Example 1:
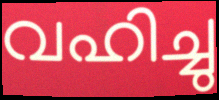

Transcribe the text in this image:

വഹിച്ചു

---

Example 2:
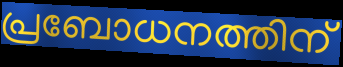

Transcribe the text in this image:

പ്രബോധനത്തിന്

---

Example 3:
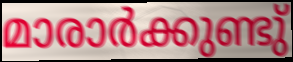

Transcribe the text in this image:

മാരാർക്കുണ്ടു്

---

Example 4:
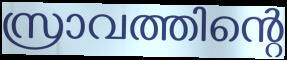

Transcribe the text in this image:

സ്രാവത്തിന്റെ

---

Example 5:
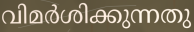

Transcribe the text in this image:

വിമർശിക്കുന്നതു